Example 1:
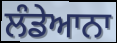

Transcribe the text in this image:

ਲੰਡੇਆਨਾ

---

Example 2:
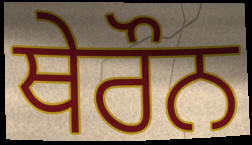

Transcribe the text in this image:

ਥੇਰੌਨ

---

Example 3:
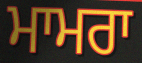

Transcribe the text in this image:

ਮਾਮਰਾ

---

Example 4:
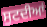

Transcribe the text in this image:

ਸੁਟਦੀਆਂ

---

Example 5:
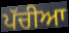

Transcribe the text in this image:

ਪੱਚੀਆ